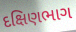
દક્ષિણભાગ